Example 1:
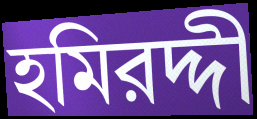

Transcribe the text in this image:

হমিরদ্দী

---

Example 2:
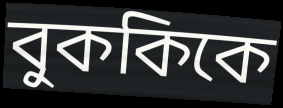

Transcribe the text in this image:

বুককিকে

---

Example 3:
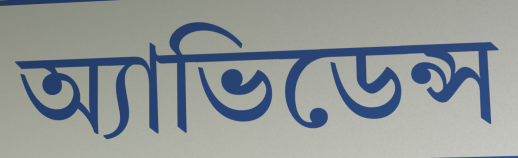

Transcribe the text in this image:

অ্যাভিডেন্স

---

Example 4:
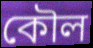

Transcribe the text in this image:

কৌল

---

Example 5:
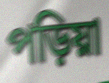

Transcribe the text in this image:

পড়িয়া